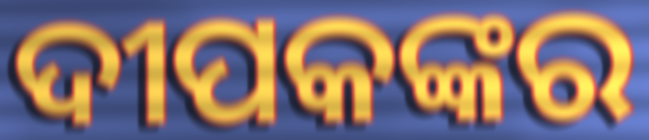
ଦୀପକଙ୍କର